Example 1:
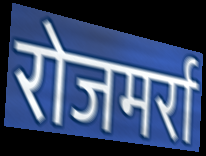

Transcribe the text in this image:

रोजमर्रा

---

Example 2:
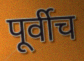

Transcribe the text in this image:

पूर्वीच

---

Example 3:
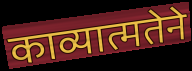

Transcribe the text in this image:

काव्यात्मतेने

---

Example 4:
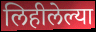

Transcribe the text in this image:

लिहीलेल्या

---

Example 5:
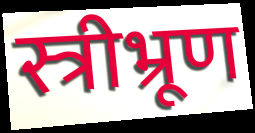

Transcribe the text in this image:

स्त्रीभ्रूण